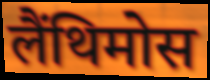
लैंथिमोस